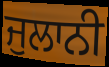
ਜੁਲਾਨੀ